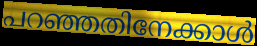
പറഞ്ഞതിനേക്കാൾ